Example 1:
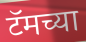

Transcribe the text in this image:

टॅमच्या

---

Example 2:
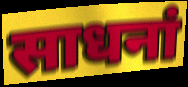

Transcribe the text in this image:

साधनां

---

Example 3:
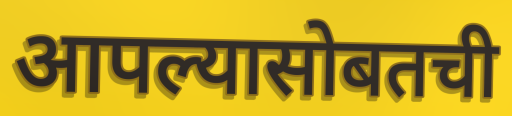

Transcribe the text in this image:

आपल्यासोबतची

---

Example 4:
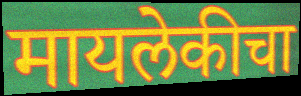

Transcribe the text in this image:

मायलेकीचा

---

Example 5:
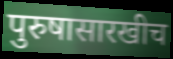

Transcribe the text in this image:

पुरुषासारखीच